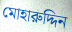
মোহারুদ্দিন